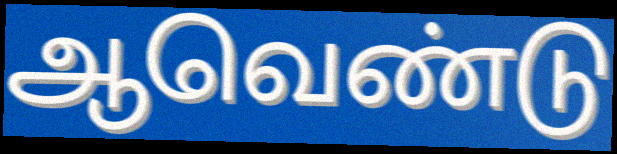
ஆவெண்டு